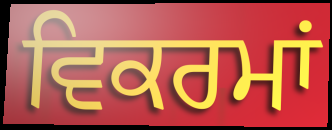
ਵਿਕਰਮਾਂ